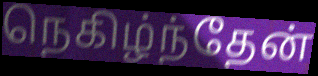
நெகிழ்ந்தேன்